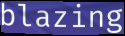
blazing